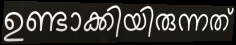
ഉണ്ടാക്കിയിരുന്നത്